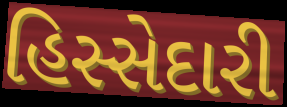
હિસ્સેદારી